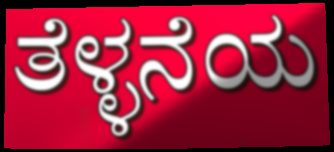
ತೆಳ್ಳನೆಯ